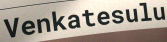
Venkatesulu